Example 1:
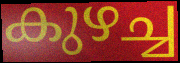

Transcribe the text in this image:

കുഴച്ച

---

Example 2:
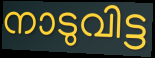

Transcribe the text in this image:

നാടുവിട്ട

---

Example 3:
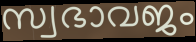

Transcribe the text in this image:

സ്വഭാവജം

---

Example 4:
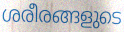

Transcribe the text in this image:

ശരീരങ്ങളുടെ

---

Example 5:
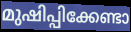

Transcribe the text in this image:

മുഷിപ്പിക്കേണ്ടാ